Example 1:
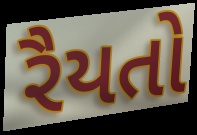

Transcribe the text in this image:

રૈયતો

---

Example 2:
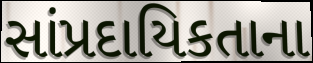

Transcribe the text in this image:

સાંપ્રદાયિકતાના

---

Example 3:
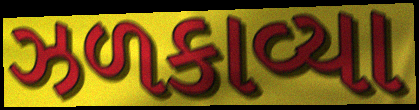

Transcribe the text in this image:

ઝળકાવ્યા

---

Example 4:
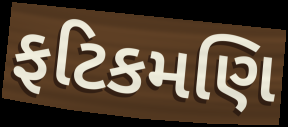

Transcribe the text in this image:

ફટિકમણિ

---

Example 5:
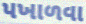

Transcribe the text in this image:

પખાળવા